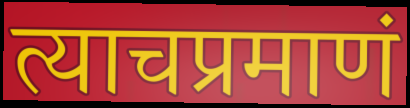
त्याचप्रमाणं